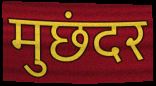
मुछंदर